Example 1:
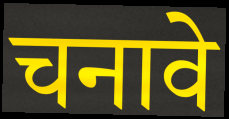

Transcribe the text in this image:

चनावे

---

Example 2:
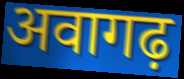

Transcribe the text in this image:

अवागढ़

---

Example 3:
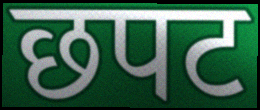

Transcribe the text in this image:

छपट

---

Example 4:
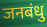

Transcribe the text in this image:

जनबंधु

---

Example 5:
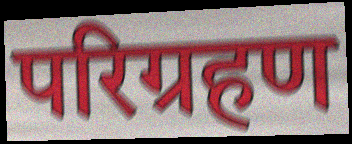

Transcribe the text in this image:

परिग्रहण